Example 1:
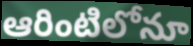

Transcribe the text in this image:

ఆరింటిలోనూ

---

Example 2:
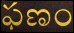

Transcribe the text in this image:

ఫణం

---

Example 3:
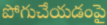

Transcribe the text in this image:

పోగుచేయడంపై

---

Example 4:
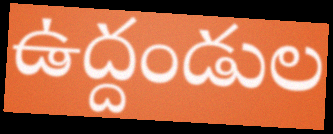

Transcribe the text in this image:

ఉద్దండుల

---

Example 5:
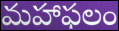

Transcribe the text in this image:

మహాఫలం